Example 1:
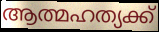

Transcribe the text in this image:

ആത്മഹത്യക്ക്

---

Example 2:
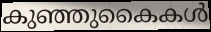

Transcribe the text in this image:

കുഞ്ഞുകൈകൾ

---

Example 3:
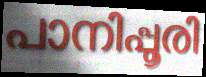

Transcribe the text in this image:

പാനിപ്പൂരി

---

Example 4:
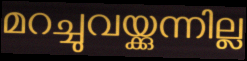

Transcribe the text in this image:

മറച്ചുവയ്ക്കുന്നില്ല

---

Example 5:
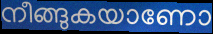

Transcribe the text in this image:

നീങ്ങുകയാണോ